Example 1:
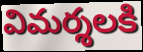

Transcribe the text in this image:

విమర్శలకి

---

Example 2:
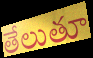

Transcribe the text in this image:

తేలుతూ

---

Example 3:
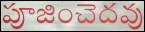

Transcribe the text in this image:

పూజించెదవు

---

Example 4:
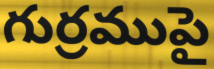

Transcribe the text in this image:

గుర్రముపై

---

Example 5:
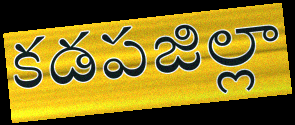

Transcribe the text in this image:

కడపజిల్లా